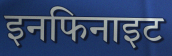
इनफिनाइट